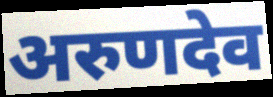
अरुणदेव